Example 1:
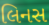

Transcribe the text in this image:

લિનસ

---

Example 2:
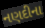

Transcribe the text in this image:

નણદીના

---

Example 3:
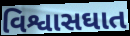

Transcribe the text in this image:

વિશ્વાસઘાત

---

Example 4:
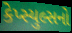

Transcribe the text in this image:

કેપ્સ્યુલ્સનો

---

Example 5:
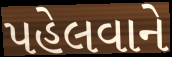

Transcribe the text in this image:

પહેલવાને